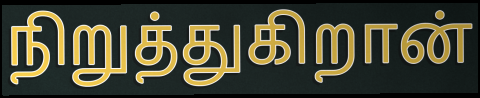
நிறுத்துகிறான்